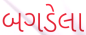
બગડેલા